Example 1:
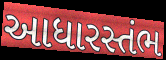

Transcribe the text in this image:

આધારસ્તંભ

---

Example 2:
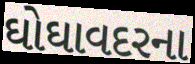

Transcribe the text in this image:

ઘોઘાવદરના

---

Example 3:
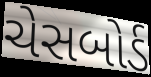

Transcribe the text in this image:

ચેસબોર્ડ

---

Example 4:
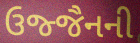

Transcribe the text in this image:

ઉજ્જૈનની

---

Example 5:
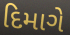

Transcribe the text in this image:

દિમાગે